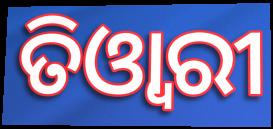
ତିଓ୍ଵାରୀ